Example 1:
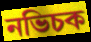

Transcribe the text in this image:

নভিচক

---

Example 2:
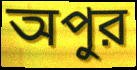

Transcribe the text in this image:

অপুর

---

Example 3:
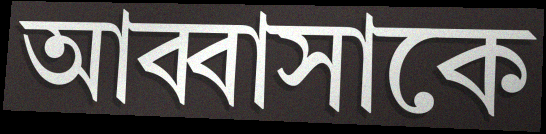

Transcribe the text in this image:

আব্বাসাকে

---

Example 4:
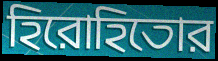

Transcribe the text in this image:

হিরোহিতোর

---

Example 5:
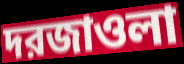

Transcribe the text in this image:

দরজাওলা